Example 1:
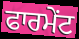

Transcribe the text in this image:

ਫਾਰਮੇਂਟ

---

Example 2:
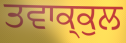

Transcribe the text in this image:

ਤਵਾਕ੍ਕੁਲ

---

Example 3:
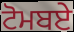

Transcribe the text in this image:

ਟੋਮਬਏ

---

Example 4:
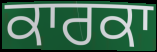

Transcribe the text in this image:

ਕਾਰਕਾ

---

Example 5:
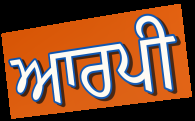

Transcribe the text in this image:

ਆਰਪੀ